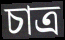
চাত্র